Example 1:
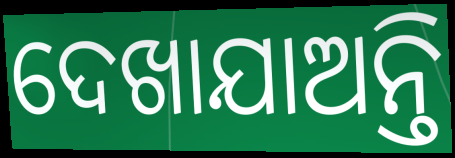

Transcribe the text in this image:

ଦେଖାଯାଅନ୍ତି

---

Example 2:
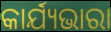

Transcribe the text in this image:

କାର୍ଯ୍ୟଭାରା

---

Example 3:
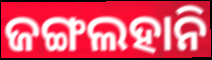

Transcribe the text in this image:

ଜଙ୍ଗଲହାନି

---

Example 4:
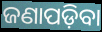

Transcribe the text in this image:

ଜଣାପଡ଼ିବା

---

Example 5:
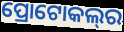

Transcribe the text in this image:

ପ୍ରୋଟୋକଲ୍‌ର